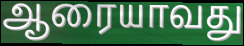
ஆரையாவது